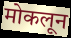
मोकलून